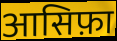
आसिफ़ा